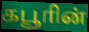
கபூரின்